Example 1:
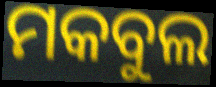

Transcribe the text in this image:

ମକବୁଲ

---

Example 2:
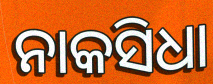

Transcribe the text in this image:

ନାକସିଧା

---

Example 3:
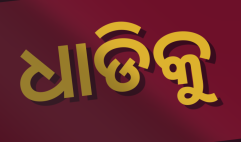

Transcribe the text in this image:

ଧାଡିକୁ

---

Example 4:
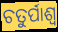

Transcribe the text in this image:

ଚତୁର୍ପାଶ୍ୱ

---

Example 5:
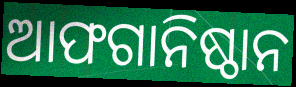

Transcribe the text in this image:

ଆଫଗାନିଷ୍ଠାନ